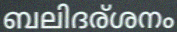
ബലിദര്ശനം